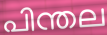
പിന്തല